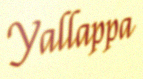
Yallappa